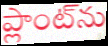
ప్లాంట్‌ను